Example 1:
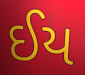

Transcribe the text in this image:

ઈય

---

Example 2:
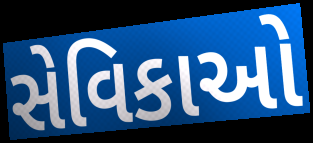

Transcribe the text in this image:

સેવિકાઓ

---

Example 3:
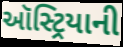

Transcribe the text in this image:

ઑસ્ટ્રિયાની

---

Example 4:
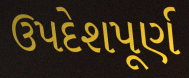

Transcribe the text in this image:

ઉપદેશપૂર્ણ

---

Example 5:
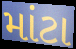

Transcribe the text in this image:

માંટા